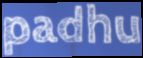
padhu